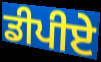
ਡੀਪੀਏ